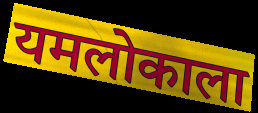
यमलोकाला